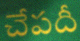
చేపదీ